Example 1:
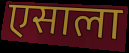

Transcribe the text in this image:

एसाला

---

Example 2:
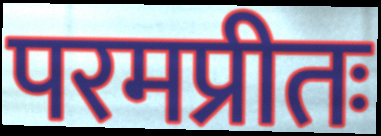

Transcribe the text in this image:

परमप्रीतः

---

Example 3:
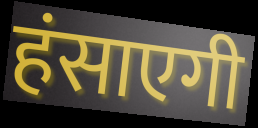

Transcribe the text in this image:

हंसाएगी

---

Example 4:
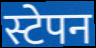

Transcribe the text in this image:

स्टेपन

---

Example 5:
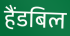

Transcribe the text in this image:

हैंडबिल